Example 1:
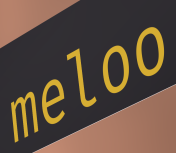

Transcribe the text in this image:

meloo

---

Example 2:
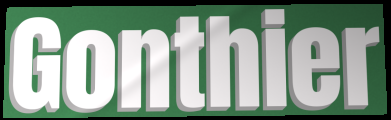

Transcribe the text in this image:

Gonthier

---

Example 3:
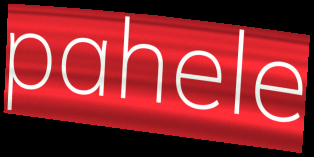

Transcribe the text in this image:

pahele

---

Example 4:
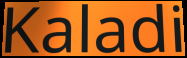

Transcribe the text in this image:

Kaladi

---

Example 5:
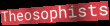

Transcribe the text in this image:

Theosophists